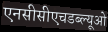
एनसीसीएचडब्ल्यूओ